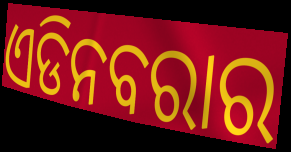
ଏଡିନବରାର